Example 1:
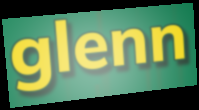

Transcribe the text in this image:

glenn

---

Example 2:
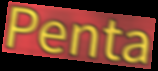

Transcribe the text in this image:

Penta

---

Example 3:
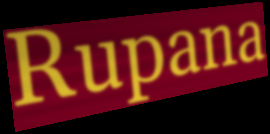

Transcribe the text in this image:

Rupana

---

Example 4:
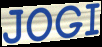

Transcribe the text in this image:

JOGI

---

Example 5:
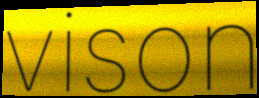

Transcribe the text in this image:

vison